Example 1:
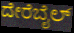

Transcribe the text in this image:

ದೇರೆಬೈಲ್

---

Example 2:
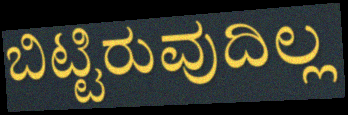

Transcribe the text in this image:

ಬಿಟ್ಟಿರುವುದಿಲ್ಲ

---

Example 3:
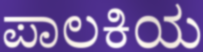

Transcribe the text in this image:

ಪಾಲಕಿಯ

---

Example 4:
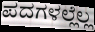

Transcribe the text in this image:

ಪದಗಳಲ್ಲೆಲ್ಲ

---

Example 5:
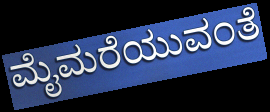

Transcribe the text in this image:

ಮೈಮರೆಯುವಂತೆ